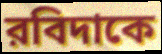
রবিদাকে